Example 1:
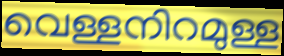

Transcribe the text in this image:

വെള്ളനിറമുള്ള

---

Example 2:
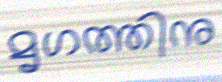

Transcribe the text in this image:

മൃഗത്തിനു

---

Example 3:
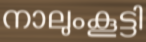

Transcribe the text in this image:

നാലുംകൂട്ടി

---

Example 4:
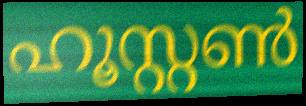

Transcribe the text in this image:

ഹൂസ്റ്റൺ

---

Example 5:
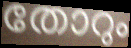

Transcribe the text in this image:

തോറും